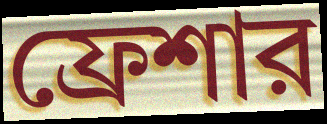
ফ্রেশার